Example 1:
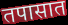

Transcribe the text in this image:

तपासात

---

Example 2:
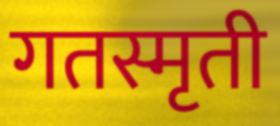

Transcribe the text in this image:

गतस्मृती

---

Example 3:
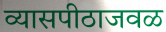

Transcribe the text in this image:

व्यासपीठाजवळ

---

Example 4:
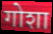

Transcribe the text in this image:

गोशा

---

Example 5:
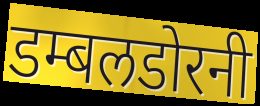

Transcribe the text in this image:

डम्बलडोरनी